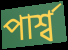
পাৰ্শ্ব